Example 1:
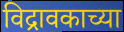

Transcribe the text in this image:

विद्रावकाच्या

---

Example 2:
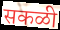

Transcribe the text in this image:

सकळी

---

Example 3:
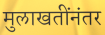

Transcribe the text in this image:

मुलाखतींनंतर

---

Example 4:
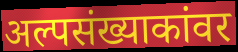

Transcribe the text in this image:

अल्पसंख्याकांवर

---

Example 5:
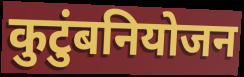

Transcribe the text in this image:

कुटुंबनियोजन